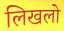
लिखलो